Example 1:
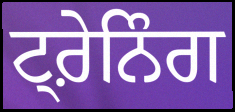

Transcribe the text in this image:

ਟ੍ਰ਼ੇਨਿੰਗ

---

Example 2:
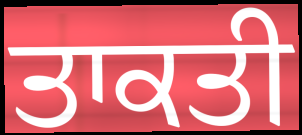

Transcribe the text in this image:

ਤਾਕਤੀ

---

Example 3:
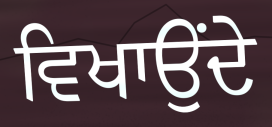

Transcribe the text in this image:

ਵਿਖਾਉੁਂਦੇ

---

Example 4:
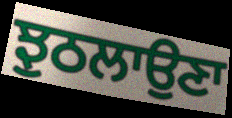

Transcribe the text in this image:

ਝੁਠਲਾਉਣਾ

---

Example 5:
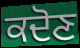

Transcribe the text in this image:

ਕਦੋਣ